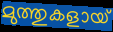
മുത്തുകളായ്